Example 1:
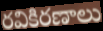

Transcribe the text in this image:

రవికిరణాలు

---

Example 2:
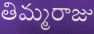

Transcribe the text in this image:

తిమ్మరాజు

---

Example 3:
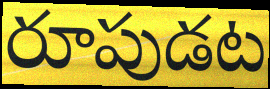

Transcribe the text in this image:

రూపుడట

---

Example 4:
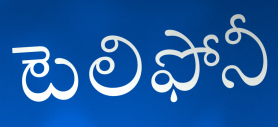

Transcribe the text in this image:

టెలిఫోనీ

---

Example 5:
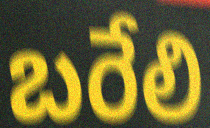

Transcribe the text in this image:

బరేలి